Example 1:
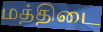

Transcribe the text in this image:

மத்திடை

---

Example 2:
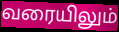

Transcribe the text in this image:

வரையிலும்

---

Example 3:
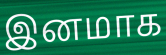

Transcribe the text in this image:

இனமாக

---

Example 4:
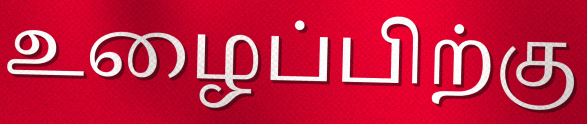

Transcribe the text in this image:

உழைப்பிற்கு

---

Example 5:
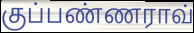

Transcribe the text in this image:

குப்பண்ணராவ்